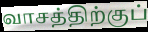
வாசத்திற்குப்